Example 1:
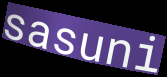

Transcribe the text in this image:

sasuni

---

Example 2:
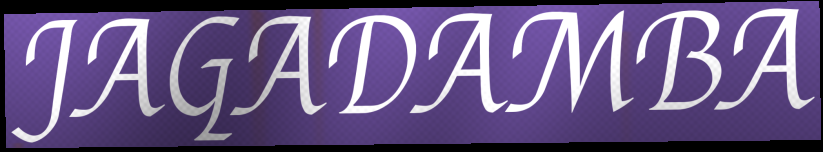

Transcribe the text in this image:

JAGADAMBA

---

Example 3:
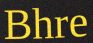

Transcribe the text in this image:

Bhre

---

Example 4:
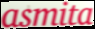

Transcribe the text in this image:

asmita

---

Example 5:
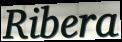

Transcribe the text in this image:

Ribera